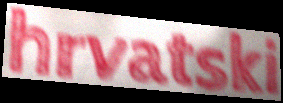
hrvatski